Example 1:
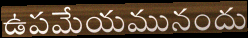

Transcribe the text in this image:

ఉపమేయమునందు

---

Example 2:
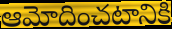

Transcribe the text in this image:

ఆమోదించటానికి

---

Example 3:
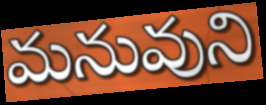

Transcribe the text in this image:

మనువుని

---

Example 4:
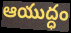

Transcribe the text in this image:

ఆయుద్ధం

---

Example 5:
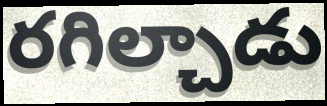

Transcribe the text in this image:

రగిల్చాడు